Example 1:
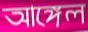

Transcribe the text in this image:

আঙ্গেল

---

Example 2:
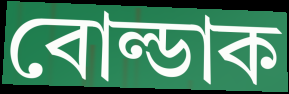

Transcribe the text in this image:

বোল্ডাক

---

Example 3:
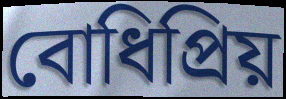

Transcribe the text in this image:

বোধিপ্রিয়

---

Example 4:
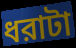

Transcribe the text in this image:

ধরাটা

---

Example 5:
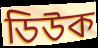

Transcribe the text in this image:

ডিউক